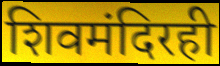
शिवमंदिरही